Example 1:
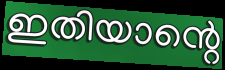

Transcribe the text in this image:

ഇതിയാന്റെ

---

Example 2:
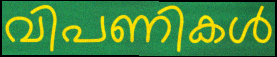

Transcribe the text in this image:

വിപണികൾ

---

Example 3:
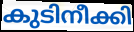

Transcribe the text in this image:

കുടിനീക്കി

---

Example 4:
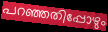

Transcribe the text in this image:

പറഞ്ഞതിപ്പോഴും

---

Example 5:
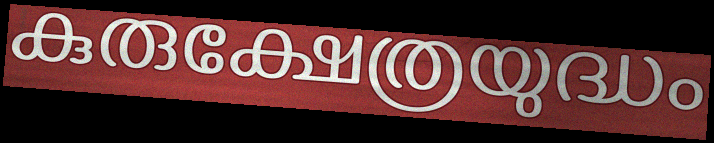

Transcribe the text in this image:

കുരുക്ഷേത്രയുദ്ധം